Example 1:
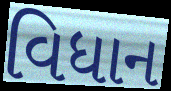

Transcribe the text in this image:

વિધાન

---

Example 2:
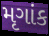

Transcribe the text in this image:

મૃગાંક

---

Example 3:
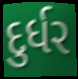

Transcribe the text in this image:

દુર્ધર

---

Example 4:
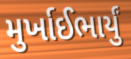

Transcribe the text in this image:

મુર્ખાઈભાર્યું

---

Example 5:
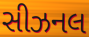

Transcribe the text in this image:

સીઝનલ